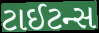
ટાઈટન્સ